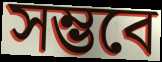
সম্ভবে